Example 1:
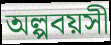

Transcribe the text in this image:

অল্পবয়সী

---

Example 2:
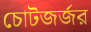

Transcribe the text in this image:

চোটজর্জর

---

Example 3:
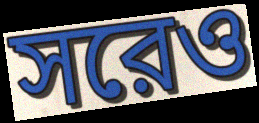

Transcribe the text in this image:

সরেও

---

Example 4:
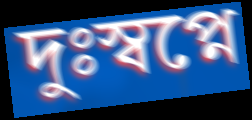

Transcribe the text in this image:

দুঃস্বপ্নে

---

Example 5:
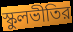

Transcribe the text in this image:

স্কুলভীতির